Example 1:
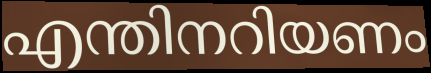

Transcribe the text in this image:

എന്തിനറിയണം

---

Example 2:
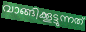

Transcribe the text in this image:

വാങ്ങിക്കൂട്ടുന്നത്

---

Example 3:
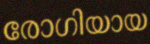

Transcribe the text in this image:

രോഗിയായ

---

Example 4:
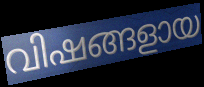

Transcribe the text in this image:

വിഷങ്ങളായ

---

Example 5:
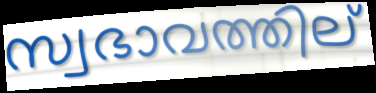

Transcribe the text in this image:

സ്വഭാവത്തില്